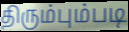
திரும்பும்படி